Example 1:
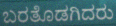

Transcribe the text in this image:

ಬರತೊಡಗಿದರು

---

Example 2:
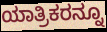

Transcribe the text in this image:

ಯಾತ್ರಿಕರನ್ನೂ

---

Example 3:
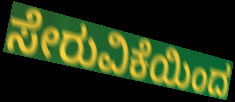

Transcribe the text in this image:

ಸೇರುವಿಕೆಯಿಂದ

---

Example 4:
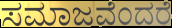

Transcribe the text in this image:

ಸಮಾಜವೆಂದರೆ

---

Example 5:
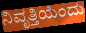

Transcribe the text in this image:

ನಿವೃತ್ತಿಯೆಂದು